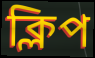
ক্লিপ